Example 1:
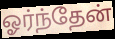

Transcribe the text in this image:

ஓர்ந்தேன்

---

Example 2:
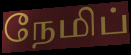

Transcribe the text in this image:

நேமிப்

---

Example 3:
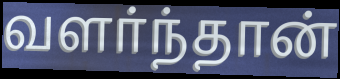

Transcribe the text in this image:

வளர்ந்தான்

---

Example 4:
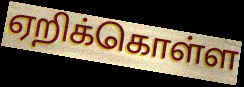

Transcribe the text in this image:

ஏறிக்கொள்ள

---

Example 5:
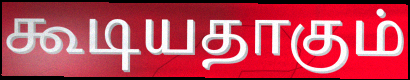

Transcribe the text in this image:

கூடியதாகும்